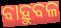
ବାହୁବଳ